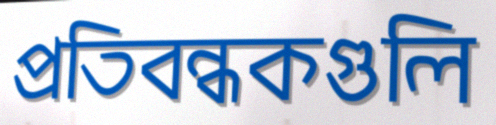
প্রতিবন্ধকগুলি